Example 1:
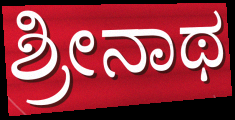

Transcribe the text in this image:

ಶ್ರೀನಾಥ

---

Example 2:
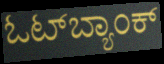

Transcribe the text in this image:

ಓಟ್‌ಬ್ಯಾಂಕ್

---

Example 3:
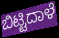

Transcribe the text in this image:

ಬಿಟ್ಟಿದಾಳೆ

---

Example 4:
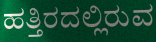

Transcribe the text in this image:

ಹತ್ತಿರದಲ್ಲಿರುವ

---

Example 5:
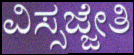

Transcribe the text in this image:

ವಿಸ್ಸಜ್ಜೇತಿ